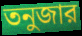
তনুজার